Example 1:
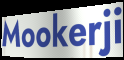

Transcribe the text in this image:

Mookerji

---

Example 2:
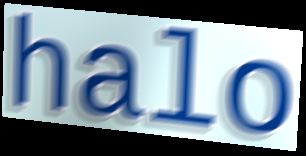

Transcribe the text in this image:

halo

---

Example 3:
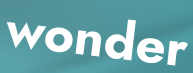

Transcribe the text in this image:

wonder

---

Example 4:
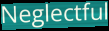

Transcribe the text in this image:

Neglectful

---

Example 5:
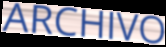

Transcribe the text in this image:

ARCHIVO